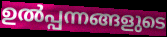
ഉൽപ്പന്നങ്ങളുടെ